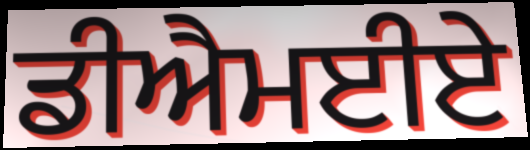
ਡੀਐਮਈਏ